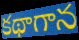
కథాగాన